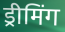
ड्रीमिंग